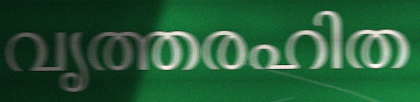
വൃത്തരഹിത